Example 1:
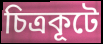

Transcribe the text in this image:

চিত্রকূটে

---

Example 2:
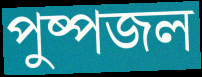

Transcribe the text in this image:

পুষ্পজল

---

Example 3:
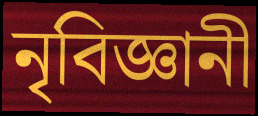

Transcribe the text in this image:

নৃবিজ্ঞানী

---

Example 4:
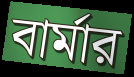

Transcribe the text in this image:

বার্মার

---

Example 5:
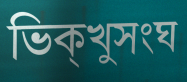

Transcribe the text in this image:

ভিক্খুসংঘ